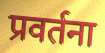
प्रवर्तना